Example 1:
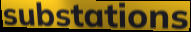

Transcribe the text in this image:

substations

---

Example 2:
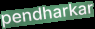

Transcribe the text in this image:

pendharkar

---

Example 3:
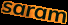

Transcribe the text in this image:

saram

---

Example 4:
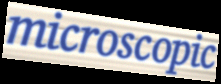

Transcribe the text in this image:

microscopic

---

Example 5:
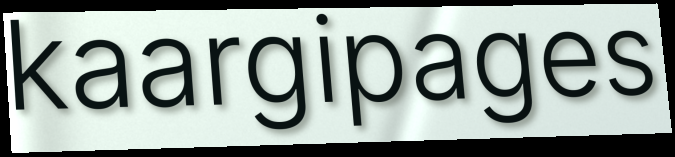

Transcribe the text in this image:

kaargipages